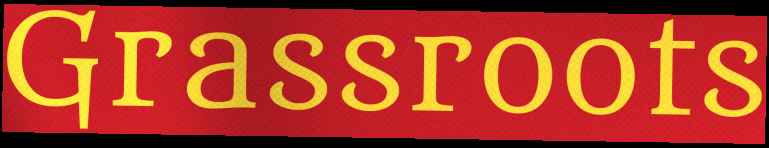
Grassroots